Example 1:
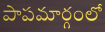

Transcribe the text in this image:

పాపమార్గంలో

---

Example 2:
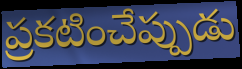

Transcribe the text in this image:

ప్రకటించేప్పుడు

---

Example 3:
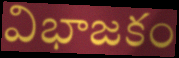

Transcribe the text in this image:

విభాజకం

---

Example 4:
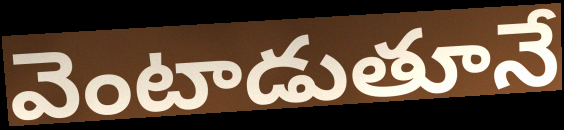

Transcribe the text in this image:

వెంటాడుతూనే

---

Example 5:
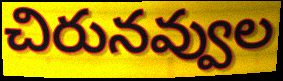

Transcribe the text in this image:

చిరునవ్వుల